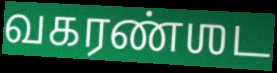
வகரண்ஶட